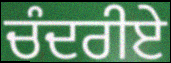
ਚੰਦਰੀਏ